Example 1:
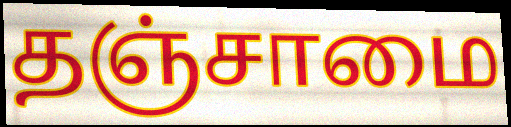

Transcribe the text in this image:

தஞ்சாமை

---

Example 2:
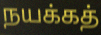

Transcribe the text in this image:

நயக்கத்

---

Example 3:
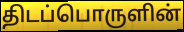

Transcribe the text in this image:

திடப்பொருளின்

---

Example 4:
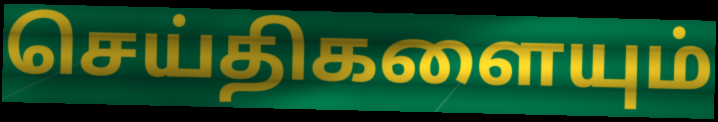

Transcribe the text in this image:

செய்திகளையும்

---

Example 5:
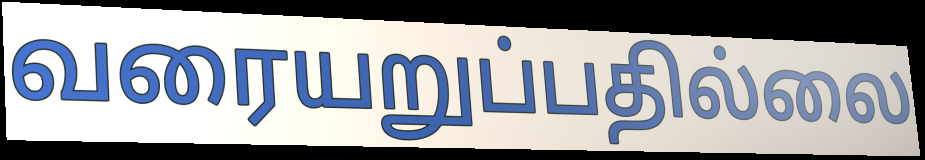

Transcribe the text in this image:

வரையறுப்பதில்லை